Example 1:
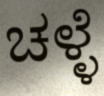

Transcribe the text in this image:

ಚಳ್ಳೆ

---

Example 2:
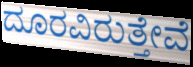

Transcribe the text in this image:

ದೂರವಿರುತ್ತೇವೆ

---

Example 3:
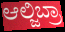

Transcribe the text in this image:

ಆಲ್ಜಿಬ್ರಾ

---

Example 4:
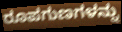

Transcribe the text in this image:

ರೂಪಗುಣಗಳನ್ನು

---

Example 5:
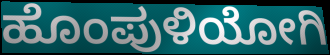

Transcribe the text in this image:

ಹೊಂಪುಳಿಯೋಗಿ